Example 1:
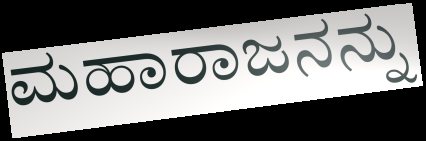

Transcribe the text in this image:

ಮಹಾರಾಜನನ್ನು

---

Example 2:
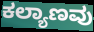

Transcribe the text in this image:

ಕಲ್ಯಾಣವು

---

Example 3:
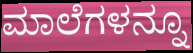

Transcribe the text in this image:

ಮಾಲೆಗಳನ್ನೂ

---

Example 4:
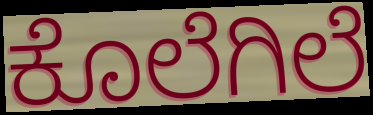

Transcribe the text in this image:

ಕೊಲೆಗಿಲೆ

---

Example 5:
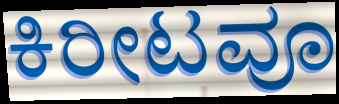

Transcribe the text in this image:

ಕಿರೀಟವೂ